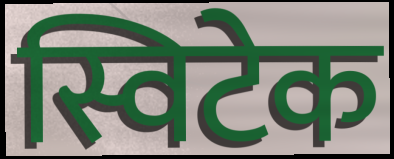
स्विटेक